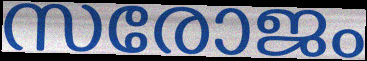
സരോജം